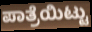
ಪಾತ್ರೆಯಿಟ್ಟು